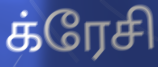
க்ரேசி